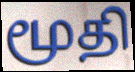
மூதி